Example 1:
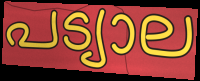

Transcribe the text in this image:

പട്യാല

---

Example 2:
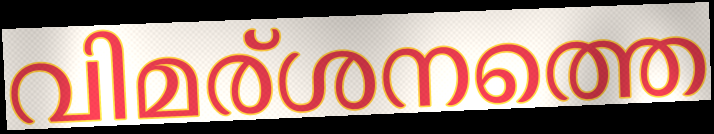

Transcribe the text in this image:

വിമര്ശനത്തെ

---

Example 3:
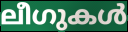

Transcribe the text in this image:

ലീഗുകൾ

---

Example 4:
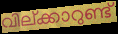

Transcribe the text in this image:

വില്ക്കാറുണ്ട്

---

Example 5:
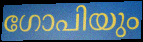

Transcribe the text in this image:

ഗോപിയും